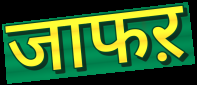
जाफऱ